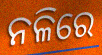
ନଳିରେ